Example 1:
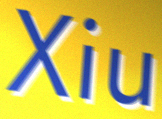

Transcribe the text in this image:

Xiu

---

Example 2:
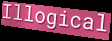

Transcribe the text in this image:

Illogical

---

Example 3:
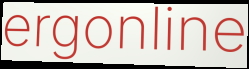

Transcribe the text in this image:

ergonline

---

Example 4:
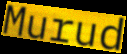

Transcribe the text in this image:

Murud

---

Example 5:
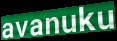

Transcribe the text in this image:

avanuku